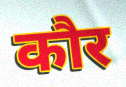
कौर